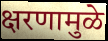
क्षरणामुळे